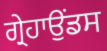
ਗ੍ਰੇਹਾਉਂਡਸ